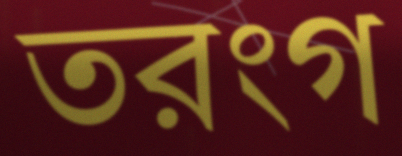
তরংগ